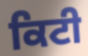
ਕਿਟੀ